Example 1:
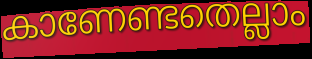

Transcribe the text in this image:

കാണേണ്ടതെല്ലാം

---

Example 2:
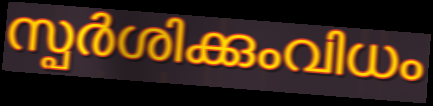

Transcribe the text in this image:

സ്പർശിക്കുംവിധം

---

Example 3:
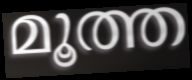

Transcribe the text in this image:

മൂത്ത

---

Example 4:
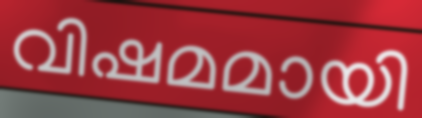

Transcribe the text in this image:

വിഷമമായി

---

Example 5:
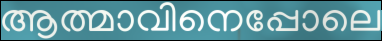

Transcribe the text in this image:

ആത്മാവിനെപ്പോലെ